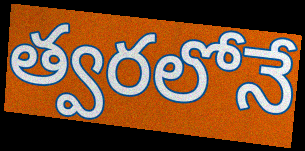
త్వరలోనే